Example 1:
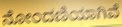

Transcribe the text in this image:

ನೋಂದಣಿಯಾಗಿವೆ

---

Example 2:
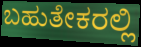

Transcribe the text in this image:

ಬಹುತೇಕರಲ್ಲಿ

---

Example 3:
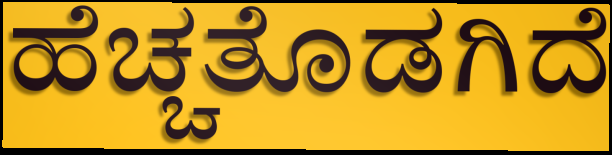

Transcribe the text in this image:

ಹೆಚ್ಚತೊಡಗಿದೆ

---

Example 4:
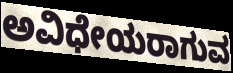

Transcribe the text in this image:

ಅವಿಧೇಯರಾಗುವ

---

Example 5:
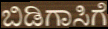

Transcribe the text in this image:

ಬಿಡಿಗಾಸಿಗೆ